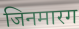
जिनमारग